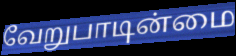
வேறுபாடின்மை